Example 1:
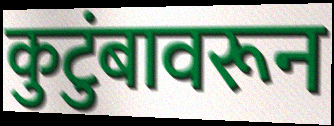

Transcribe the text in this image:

कुटुंबावरून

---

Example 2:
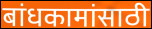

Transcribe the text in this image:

बांधकामांसाठी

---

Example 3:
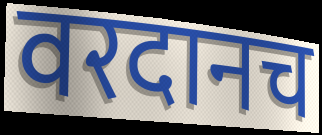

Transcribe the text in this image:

वरदानच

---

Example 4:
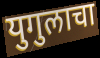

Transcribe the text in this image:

युगुलाचा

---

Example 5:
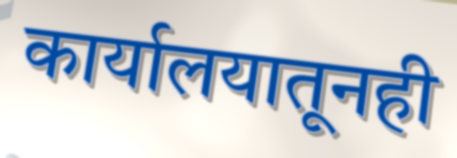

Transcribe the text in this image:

कार्यालयातूनही